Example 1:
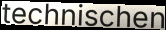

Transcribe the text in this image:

technischen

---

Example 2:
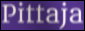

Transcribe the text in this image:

Pittaja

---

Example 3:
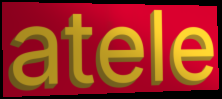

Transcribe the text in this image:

atele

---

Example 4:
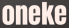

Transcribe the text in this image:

oneke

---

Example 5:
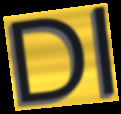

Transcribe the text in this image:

Dl